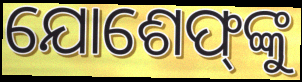
ଯୋଶେଫ୍‌ଙ୍କୁ